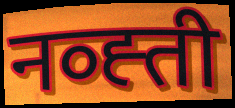
नव्ह्ती